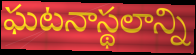
ఘటనాస్థలాన్ని